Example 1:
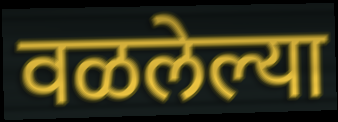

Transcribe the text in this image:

वळलेल्या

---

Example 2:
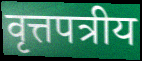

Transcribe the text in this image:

वृत्तपत्रीय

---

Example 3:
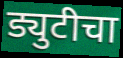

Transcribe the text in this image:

ड्युटीचा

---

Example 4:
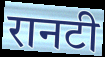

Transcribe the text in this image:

रानटी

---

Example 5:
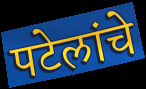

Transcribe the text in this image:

पटेलांचे